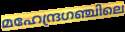
മഹേന്ദ്രഗഞ്ചിലെ